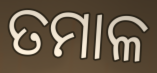
ତମାଳ